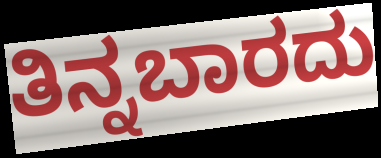
ತಿನ್ನಬಾರದು